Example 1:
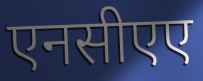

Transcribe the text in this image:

एनसीएए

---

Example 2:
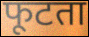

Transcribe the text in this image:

फूटता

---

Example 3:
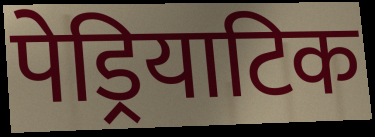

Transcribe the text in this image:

पेड्रियाटिक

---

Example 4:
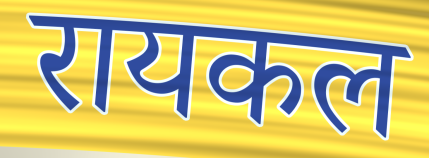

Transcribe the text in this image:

रायकल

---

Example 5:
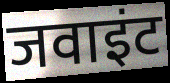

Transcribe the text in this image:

जवाइंट